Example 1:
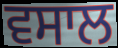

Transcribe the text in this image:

ਵਸਾਲ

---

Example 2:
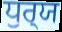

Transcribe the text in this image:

ਧੁਰ੍‍ਯ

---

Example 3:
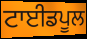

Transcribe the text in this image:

ਟਾਈਡਪੂਲ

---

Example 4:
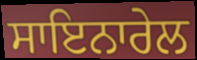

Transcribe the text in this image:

ਸਾਇਨਾਰੇਲ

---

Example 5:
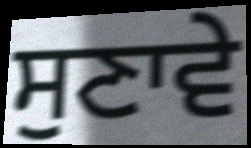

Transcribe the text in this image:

ਸੁਣਾਵੇ